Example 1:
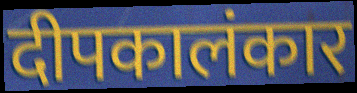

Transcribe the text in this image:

दीपकालंकार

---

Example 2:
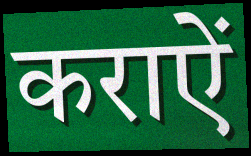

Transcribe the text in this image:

कराऐं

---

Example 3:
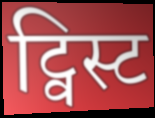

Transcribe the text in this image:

ट्विस्ट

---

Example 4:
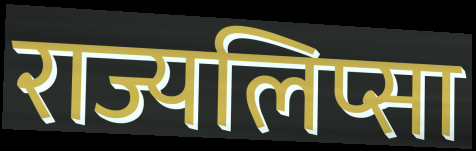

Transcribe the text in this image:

राज्यलिप्सा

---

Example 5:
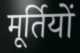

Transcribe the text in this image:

मूर्तियों